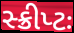
સ્ક્રીપ્ટઃ